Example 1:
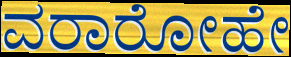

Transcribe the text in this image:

ವರಾರೋಹೇ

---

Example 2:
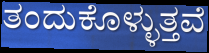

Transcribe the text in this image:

ತಂದುಕೊಳ್ಳುತ್ತವೆ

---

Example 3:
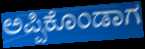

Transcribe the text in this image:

ಅಪ್ಪಿಕೊಂಡಾಗ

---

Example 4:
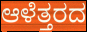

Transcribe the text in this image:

ಆಳೆತ್ತರದ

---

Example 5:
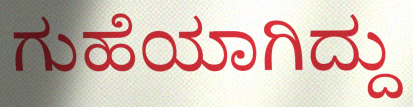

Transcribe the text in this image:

ಗುಹೆಯಾಗಿದ್ದು